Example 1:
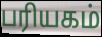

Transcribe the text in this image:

பரியகம்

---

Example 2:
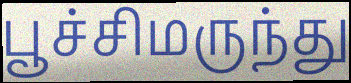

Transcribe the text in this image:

பூச்சிமருந்து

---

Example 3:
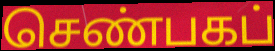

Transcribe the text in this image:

செண்பகப்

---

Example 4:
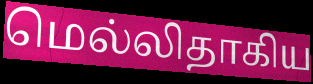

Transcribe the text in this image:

மெல்லிதாகிய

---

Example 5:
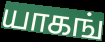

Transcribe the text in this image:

யாகங்